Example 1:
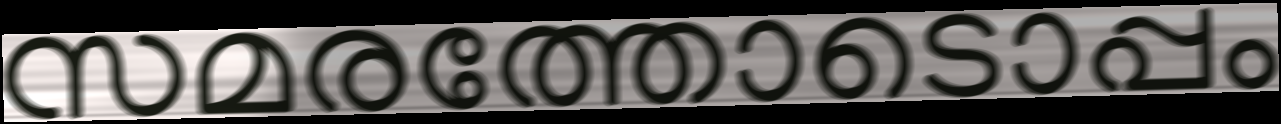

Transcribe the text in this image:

സമരത്തോടൊപ്പം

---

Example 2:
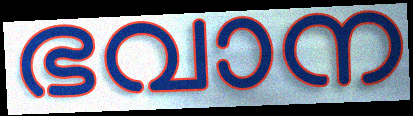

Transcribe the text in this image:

ഭവാന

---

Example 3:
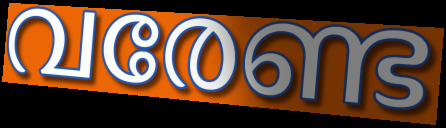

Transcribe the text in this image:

വരേണ്ട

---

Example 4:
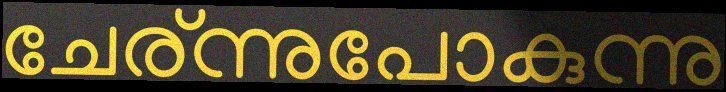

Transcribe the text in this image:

ചേര്ന്നുപോകുന്നു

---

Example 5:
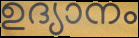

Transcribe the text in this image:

ഉദ്യാനം